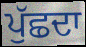
ਪੁੱਛਦਾ